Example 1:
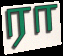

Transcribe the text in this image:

ரா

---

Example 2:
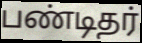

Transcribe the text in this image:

பண்டிதர்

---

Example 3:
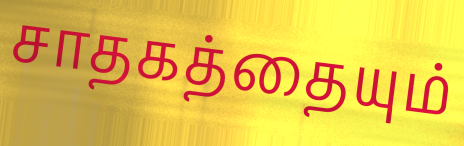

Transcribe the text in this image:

சாதகத்தையும்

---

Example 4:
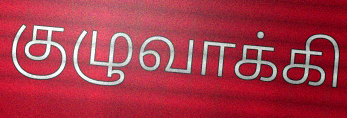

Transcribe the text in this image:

குழுவாக்கி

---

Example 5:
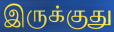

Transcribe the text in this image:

இருக்குது